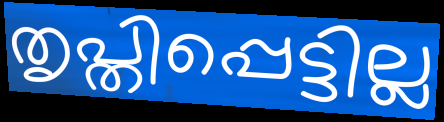
തൃപ്തിപ്പെട്ടില്ല